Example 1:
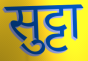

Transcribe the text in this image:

सुट्टा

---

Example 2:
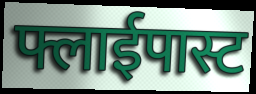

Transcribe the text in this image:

फ्लाईपास्ट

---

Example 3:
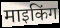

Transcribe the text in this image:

माइकिंग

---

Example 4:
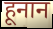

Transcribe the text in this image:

हूनान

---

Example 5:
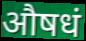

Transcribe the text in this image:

औषधं